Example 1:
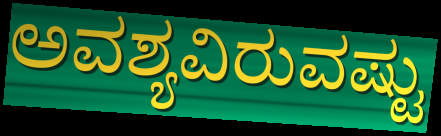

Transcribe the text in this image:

ಅವಶ್ಯವಿರುವಷ್ಟು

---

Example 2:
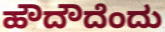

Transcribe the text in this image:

ಹೌದೌದೆಂದು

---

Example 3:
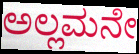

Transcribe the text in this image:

ಅಲ್ಲಮನೇ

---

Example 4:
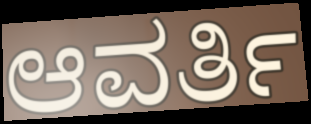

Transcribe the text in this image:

ಆವರ್ತಿ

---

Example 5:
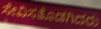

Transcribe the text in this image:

ಸೇವಿಸತೊಡಗಿದರು